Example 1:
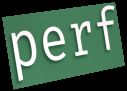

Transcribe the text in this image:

perf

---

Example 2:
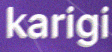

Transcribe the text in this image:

karigi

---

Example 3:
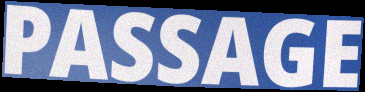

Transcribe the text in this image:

PASSAGE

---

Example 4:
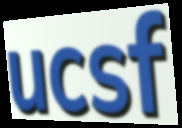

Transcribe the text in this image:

ucsf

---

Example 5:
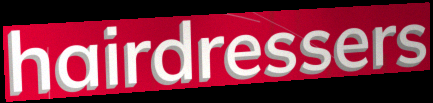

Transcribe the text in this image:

hairdressers